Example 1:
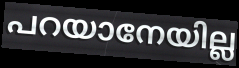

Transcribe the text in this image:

പറയാനേയില്ല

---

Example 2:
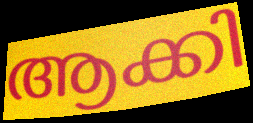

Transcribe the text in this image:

ആക്കി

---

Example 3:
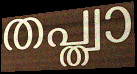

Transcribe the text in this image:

തപ്ത്വാ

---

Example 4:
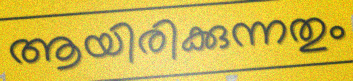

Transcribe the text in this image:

ആയിരിക്കുന്നതും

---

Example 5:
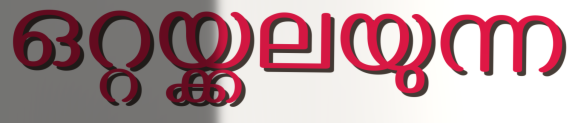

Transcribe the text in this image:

ഒറ്റയ്ക്കലയുന്ന